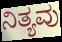
ನಿತ್ಯವು